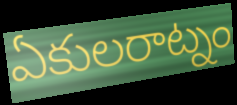
ఏకులరాట్నం